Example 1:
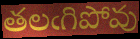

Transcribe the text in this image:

తలఁగిపోవు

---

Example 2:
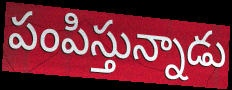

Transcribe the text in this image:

పంపిస్తున్నాడు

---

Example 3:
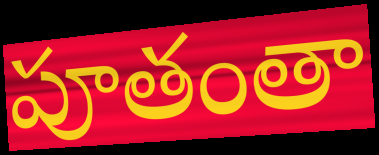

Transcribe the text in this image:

పూతంతా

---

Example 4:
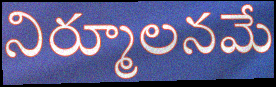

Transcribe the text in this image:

నిర్మూలనమే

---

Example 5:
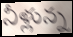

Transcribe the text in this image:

నీళ్లున్న